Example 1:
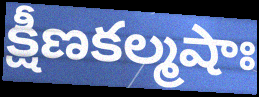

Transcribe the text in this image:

క్షీణకల్మషాః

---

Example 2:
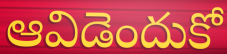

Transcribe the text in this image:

ఆవిడెందుకో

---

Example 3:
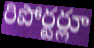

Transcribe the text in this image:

రిపోర్టర్లూ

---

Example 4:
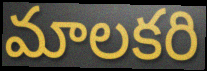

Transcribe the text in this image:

మాలకరి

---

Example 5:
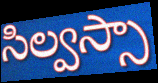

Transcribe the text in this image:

సిల్వస్సా